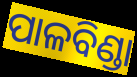
ପାଳବିଣ୍ଡା